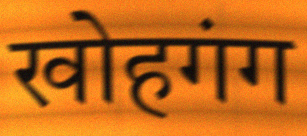
खोहगंग